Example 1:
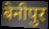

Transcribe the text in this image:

बेनीपुर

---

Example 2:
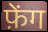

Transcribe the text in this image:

फ़ेंग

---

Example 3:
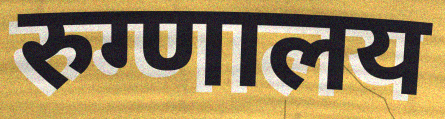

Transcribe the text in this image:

रुग्णालय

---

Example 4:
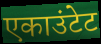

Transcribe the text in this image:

एकाउंटेट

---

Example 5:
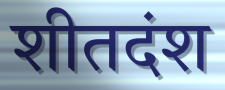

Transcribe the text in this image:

शीतदंश